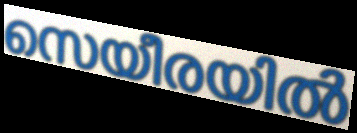
സെയീരയിൽ